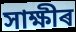
সাক্ষীৰ